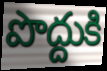
పొద్దుకి